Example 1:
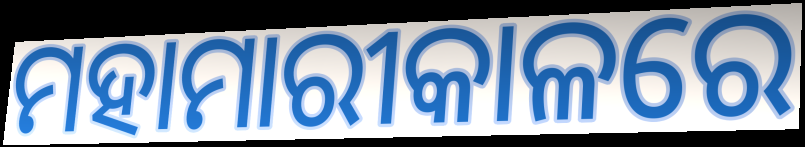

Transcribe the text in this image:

ମହାମାରୀକାଳରେ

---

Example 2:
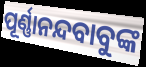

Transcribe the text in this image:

ପୂର୍ଣ୍ଣାନନ୍ଦବାବୁଙ୍କ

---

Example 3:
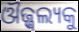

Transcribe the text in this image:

ଔଜ୍ଜ୍ଵଲ୍ୟକୁ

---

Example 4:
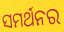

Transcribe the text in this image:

ସମର୍ଥନର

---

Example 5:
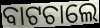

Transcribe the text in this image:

ବାଟଚାଲେ